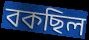
বকছিল